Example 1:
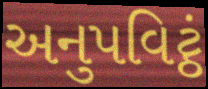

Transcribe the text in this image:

અનુપવિટ્ઠં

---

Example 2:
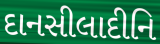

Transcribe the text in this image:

દાનસીલાદીનિ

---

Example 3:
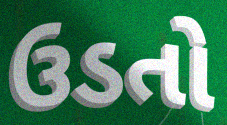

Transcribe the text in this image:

ઉડતો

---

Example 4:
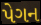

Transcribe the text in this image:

પેગન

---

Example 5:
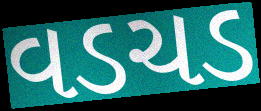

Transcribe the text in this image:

વડચડ